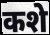
कशे